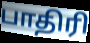
பாதிரி